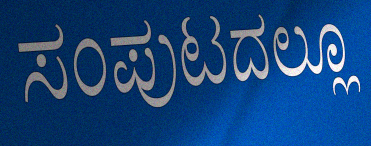
ಸಂಪುಟದಲ್ಲೂ